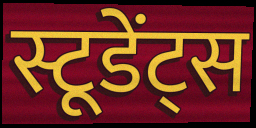
स्टूडेंट्स